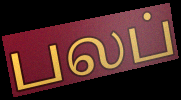
பலப்